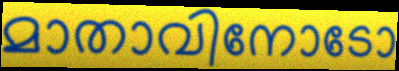
മാതാവിനോടോ